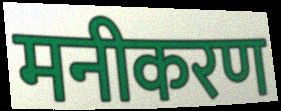
मनीकरण